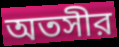
অতসীর